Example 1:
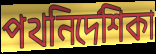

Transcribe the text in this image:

পথনির্দেশিকা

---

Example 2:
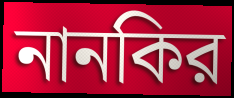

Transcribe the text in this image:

নানকির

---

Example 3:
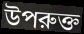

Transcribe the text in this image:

উপরুক্ত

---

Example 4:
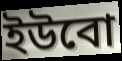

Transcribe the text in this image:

ইউবো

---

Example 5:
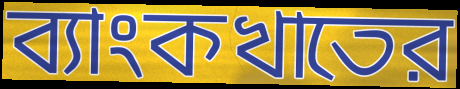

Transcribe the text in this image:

ব্যাংকখাতের